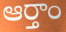
ఆర్తాం